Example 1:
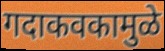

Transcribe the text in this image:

गदाकवकामुळे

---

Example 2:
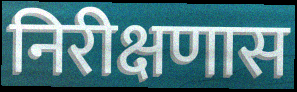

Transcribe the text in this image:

निरीक्षणास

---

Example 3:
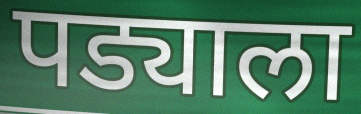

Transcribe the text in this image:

पड्याला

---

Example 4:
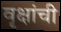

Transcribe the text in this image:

वृक्षांची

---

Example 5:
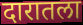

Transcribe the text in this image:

दारातला